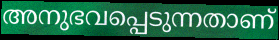
അനുഭവപ്പെടുന്നതാണ്